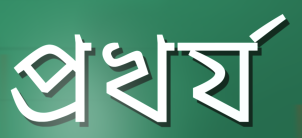
প্রখর্য